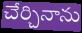
చేర్చినాను